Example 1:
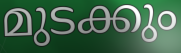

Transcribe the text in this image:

മുടക്കും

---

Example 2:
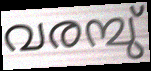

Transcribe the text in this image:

വരമ്പു്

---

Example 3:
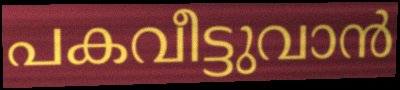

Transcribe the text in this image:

പകവീട്ടുവാൻ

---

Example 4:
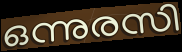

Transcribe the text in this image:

ഒന്നുരസി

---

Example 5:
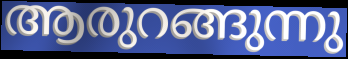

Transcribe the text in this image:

ആരുറങ്ങുന്നു